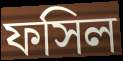
ফসিল